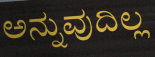
ಅನ್ನುವುದಿಲ್ಲ